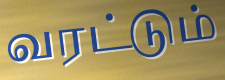
வரட்டும்